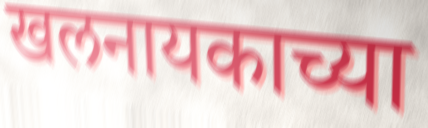
खलनायकाच्या